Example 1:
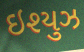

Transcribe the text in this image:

ઇશ્યુઝ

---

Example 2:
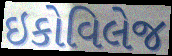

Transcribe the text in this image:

ઇકોવિલેજ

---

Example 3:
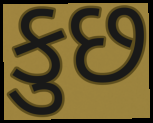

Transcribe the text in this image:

કુછ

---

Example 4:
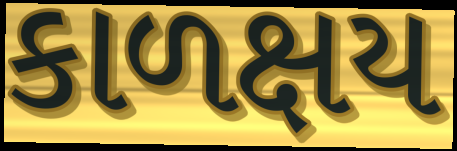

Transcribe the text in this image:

કાળક્ષય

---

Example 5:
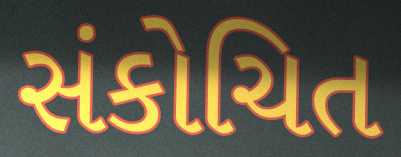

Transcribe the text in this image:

સંકોચિત